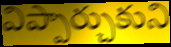
విప్పార్చుకుని